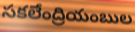
సకలేంద్రియంబుల